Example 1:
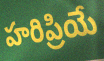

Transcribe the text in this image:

హరిప్రియే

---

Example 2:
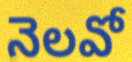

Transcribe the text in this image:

నెలవో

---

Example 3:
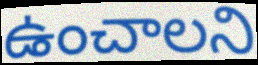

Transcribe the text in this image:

ఉంచాలని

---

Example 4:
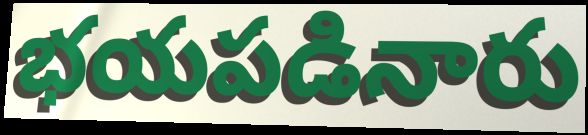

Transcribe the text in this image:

భయపడినారు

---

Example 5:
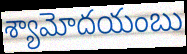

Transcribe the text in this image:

శ్యామోదయంబు